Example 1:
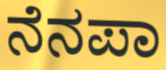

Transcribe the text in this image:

ನೆನಪಾ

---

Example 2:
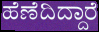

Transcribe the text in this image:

ಹೆಣೆದಿದ್ದಾರೆ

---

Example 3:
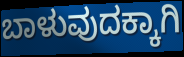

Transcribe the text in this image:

ಬಾಳುವುದಕ್ಕಾಗಿ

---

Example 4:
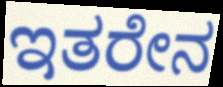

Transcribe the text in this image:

ಇತರೇನ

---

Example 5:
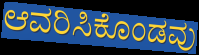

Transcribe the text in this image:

ಆವರಿಸಿಕೊಂಡವು